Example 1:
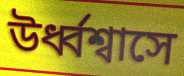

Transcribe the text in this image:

উর্ধ্বশ্বাসে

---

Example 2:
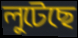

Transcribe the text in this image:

লুটেছে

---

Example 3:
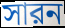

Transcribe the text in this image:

সারন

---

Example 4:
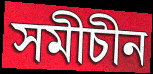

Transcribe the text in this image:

সমীচীন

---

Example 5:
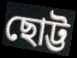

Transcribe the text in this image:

ছোট্ট